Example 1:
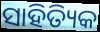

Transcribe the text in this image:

ସାହିତ୍ୟିକ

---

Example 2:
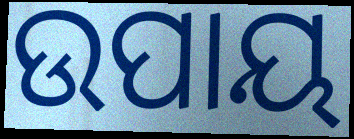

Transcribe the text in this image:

ଉପାୟ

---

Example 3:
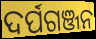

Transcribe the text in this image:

ଦର୍ପଗଞ୍ଜନ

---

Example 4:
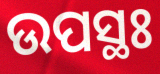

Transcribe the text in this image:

ଉପସ୍ଥଃ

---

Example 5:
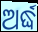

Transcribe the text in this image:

ଅର୍ଦ୍ଧ